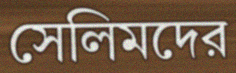
সেলিমদের